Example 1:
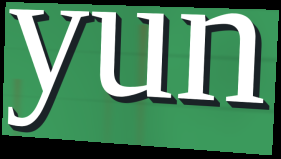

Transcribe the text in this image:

yun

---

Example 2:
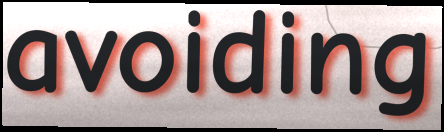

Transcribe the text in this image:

avoiding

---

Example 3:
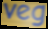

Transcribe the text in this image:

veg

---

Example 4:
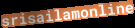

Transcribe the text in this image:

srisailamonline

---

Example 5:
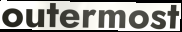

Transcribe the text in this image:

outermost